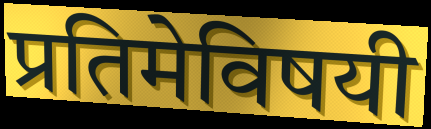
प्रतिमेविषयी